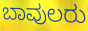
ಬಾವುಲರು